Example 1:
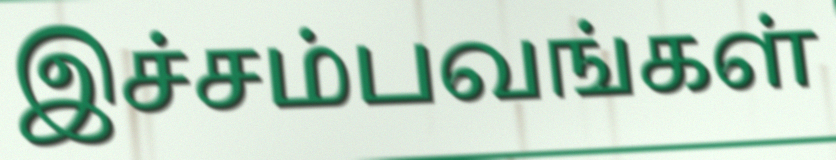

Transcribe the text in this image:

இச்சம்பவங்கள்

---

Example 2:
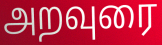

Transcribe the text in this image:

அறவுரை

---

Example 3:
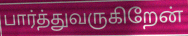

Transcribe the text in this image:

பார்த்துவருகிறேன்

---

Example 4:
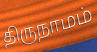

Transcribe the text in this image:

திருநாமம்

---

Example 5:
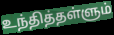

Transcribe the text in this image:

உந்தித்தள்ளும்